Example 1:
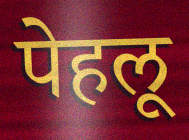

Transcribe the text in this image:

पेहलू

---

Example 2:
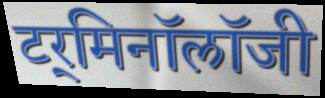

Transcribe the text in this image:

टर्मिनॉलॉजी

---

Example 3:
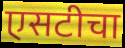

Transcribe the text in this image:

एसटीचा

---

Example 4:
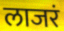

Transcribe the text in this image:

लाजरं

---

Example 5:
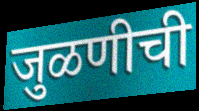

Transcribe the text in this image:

जुळणीची